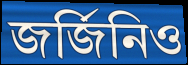
জর্জিনিও